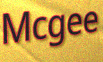
Mcgee